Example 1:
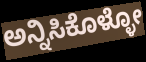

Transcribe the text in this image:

ಅನ್ನಿಸಿಕೊಳ್ಳೋ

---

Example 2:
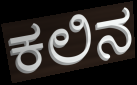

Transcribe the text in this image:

ಕಲಿನ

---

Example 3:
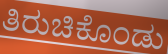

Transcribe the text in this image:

ತಿರುಚಿಕೊಂಡು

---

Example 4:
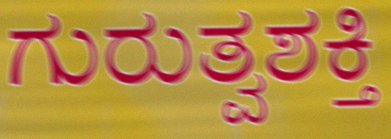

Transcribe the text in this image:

ಗುರುತ್ವಶಕ್ತಿ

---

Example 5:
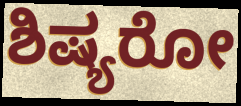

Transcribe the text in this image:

ಶಿಷ್ಯರೋ